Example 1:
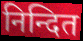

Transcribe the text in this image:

निन्दित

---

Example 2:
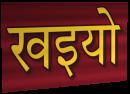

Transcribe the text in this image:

खइयो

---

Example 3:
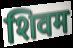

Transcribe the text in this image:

शिवम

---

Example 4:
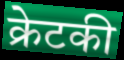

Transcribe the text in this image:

क्रेटकी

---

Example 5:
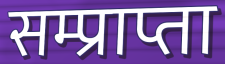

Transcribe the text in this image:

सम्प्राप्ता